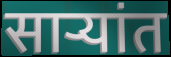
साऱ्यांत